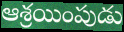
ఆశ్రయింపుడు